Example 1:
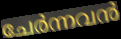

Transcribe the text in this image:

ചേർന്നവൻ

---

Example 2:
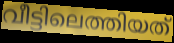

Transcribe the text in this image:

വീട്ടിലെത്തിയത്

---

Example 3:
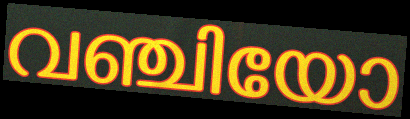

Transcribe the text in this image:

വഞ്ചിയോ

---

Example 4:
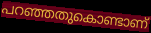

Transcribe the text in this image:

പറഞ്ഞതുകൊണ്ടാണ്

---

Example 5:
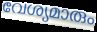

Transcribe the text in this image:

വേശ്യമാരും